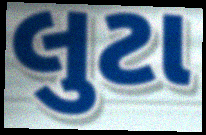
લુટા